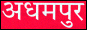
अधमपुर